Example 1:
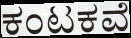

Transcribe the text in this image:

ಕಂಟಕವೆ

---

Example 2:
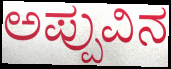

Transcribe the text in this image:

ಅಪ್ಪುವಿನ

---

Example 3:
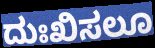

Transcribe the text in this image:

ದುಃಖಿಸಲೂ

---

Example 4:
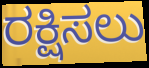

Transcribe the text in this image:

ರಕ್ಷಿಸಲು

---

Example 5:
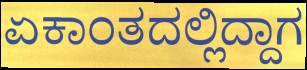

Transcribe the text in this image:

ಏಕಾಂತದಲ್ಲಿದ್ದಾಗ